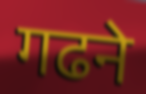
गढने